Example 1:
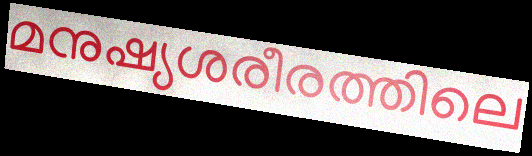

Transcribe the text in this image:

മനുഷ്യശരീരത്തിലെ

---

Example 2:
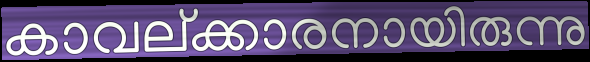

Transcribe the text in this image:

കാവല്ക്കാരനായിരുന്നു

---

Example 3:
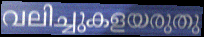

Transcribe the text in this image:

വലിച്ചുകളയരുതു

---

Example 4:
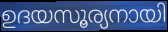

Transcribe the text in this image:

ഉദയസൂര്യനായി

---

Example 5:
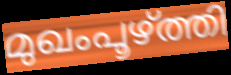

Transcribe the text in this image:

മുഖംപൂഴ്ത്തി